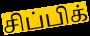
சிப்பிக்